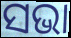
ସଭା